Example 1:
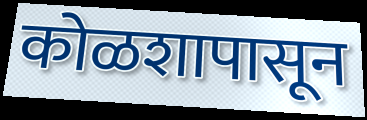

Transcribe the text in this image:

कोळशापासून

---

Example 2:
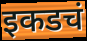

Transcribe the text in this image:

इकडचं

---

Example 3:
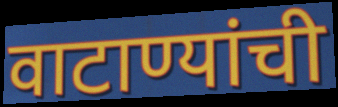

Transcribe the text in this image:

वाटाण्यांची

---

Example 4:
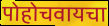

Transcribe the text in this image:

पोहोचवायचा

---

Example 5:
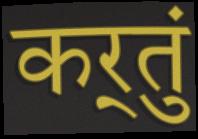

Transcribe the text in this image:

कर्तुं